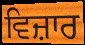
ਵਿਜ਼ਾਰ